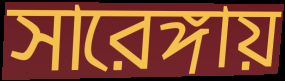
সারেঙ্গায়